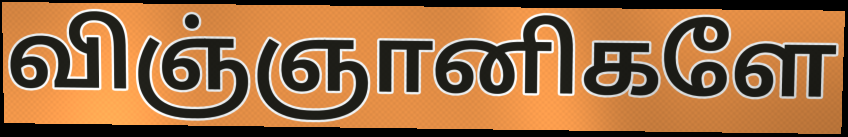
விஞ்ஞானிகளே